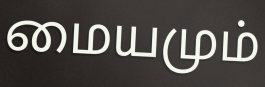
மையமும்